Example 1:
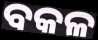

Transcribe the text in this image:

ବକଳ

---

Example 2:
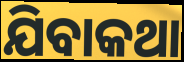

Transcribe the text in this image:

ଯିବାକଥା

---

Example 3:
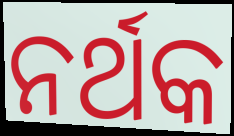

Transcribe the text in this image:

ନର୍ଥକ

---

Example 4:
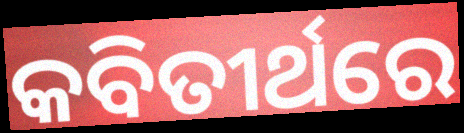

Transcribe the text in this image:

କବିତୀର୍ଥରେ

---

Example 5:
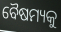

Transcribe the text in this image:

ବୈଷମ୍ୟକୁ